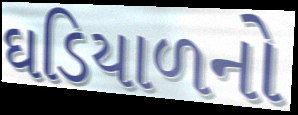
ઘડિયાળનો